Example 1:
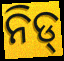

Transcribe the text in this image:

ନିଡ୍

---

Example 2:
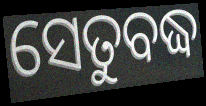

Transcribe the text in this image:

ସେତୁବଦ୍ଧ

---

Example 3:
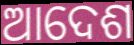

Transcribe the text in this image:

ଆଦେଶ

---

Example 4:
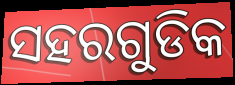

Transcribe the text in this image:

ସହରଗୁଡିକ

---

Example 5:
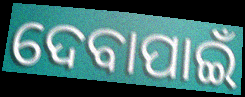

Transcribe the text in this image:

ଦେବାପାଇଁ